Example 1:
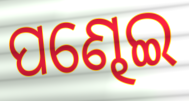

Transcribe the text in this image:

ପଣ୍ଢେଇ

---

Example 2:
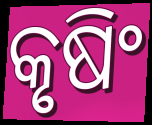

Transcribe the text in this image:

କୃଷିଂ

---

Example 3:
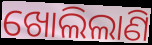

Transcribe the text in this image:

ଖୋଲିଲାଣି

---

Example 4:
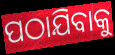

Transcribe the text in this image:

ପଠାଯିବାକୁ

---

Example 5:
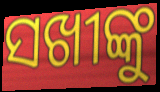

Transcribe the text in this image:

ସଖୀଙ୍କୁ